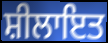
ਸ਼ੀਲਾਇਤ